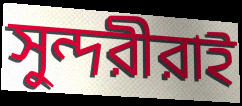
সুন্দরীরাই